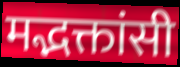
मद्भक्तांसी